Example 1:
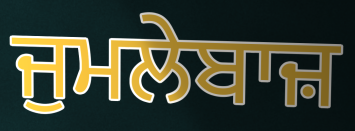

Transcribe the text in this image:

ਜੁਮਲੇਬਾਜ਼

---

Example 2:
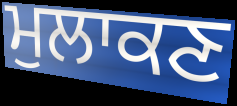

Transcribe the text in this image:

ਮੁਲਾਕਣ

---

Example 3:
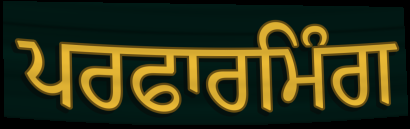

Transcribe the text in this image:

ਪਰਫਾਰਮਿੰਗ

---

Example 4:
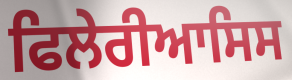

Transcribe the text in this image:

ਫਿਲੇਰੀਆਸਿਸ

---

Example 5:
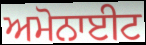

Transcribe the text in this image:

ਅਮੋਨਾਈਟ